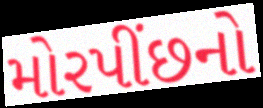
મોરપીંછનો